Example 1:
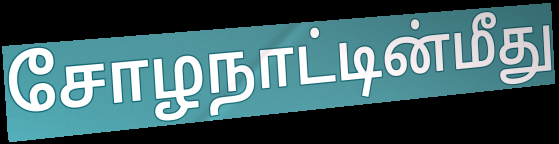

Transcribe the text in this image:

சோழநாட்டின்மீது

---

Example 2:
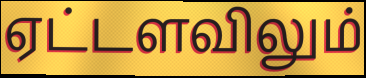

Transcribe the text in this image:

ஏட்டளவிலும்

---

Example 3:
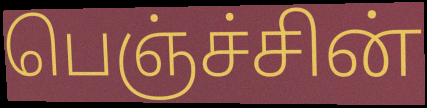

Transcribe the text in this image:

பெஞ்ச்சின்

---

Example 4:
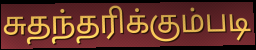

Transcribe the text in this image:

சுதந்தரிக்கும்படி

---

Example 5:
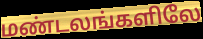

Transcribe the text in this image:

மண்டலங்களிலே